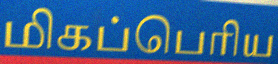
மிகப்பெரிய